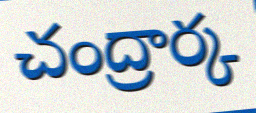
చంద్రార్క